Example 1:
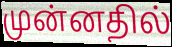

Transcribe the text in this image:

முன்னதில்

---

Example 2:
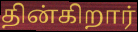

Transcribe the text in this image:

தின்கிறார்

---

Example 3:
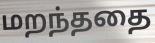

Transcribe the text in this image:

மறந்ததை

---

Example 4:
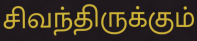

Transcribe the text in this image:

சிவந்திருக்கும்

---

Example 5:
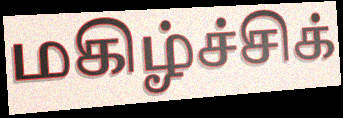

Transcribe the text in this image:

மகிழ்ச்சிக்